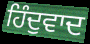
ਹਿੰਦੁਵਾਦ